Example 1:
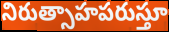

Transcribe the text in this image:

నిరుత్సాహపరుస్తూ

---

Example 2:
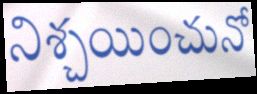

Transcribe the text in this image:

నిశ్చయించునో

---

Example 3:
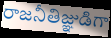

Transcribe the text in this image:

రాజనీతిజ్ఞుడిగా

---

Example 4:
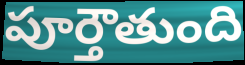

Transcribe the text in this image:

పూర్తౌతుంది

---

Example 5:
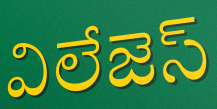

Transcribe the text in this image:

విలేజెస్